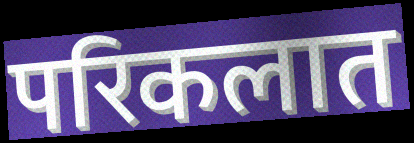
परिकलात